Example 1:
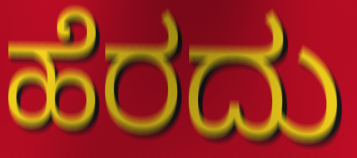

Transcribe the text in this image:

ಹೆರದು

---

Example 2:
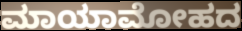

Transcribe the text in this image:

ಮಾಯಾಮೋಹದ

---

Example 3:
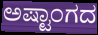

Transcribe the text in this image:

ಅಷ್ಟಾಂಗದ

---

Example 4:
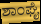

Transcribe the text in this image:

ಶಾಂಘೈ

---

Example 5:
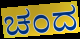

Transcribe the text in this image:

ಚಂದ